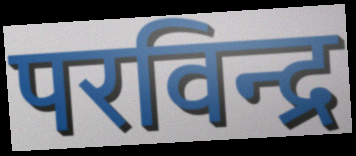
परविन्द्र